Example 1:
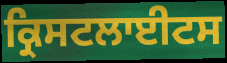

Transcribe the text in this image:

ਕ੍ਰਿਸਟਲਾਈਟਸ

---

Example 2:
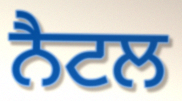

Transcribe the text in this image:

ਨੈਟਲ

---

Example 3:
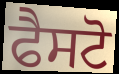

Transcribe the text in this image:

ਫੈਸਟੋ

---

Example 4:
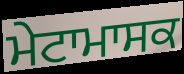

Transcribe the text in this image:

ਮੇਟਾਮਾਸਕ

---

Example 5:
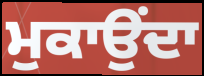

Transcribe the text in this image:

ਮੁਕਾਉਂਦਾ